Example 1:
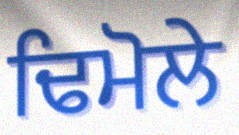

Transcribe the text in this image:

ਢਿਮੋਲੇ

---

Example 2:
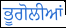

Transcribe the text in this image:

ਭੂਗੋਲੀਆਂ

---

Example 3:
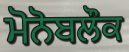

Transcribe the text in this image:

ਮੋਨੋਬਲੌਕ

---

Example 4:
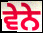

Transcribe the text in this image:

ਵੇਨੇ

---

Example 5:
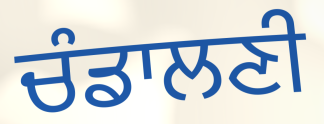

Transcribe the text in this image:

ਚੰਡਾਲਣੀ